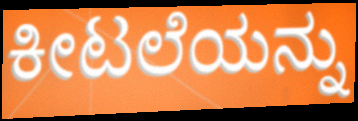
ಕೀಟಲೆಯನ್ನು